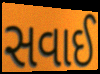
સવાઈ